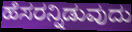
ಹೆಸರನ್ನಿಡುವುದು